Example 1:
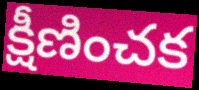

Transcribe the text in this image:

క్షీణించక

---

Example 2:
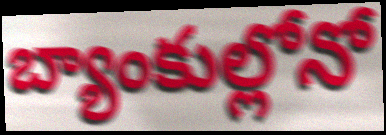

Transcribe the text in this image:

బ్యాంకుల్లోనో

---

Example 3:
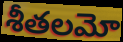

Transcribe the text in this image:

శీతలమో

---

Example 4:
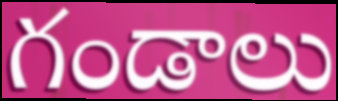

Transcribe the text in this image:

గండాలు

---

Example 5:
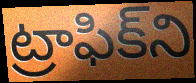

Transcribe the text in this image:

ట్రాఫిక్‌ని